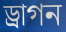
ড্রাগন